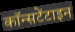
कॉन्सटेंटाइन